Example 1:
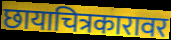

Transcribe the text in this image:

छायाचित्रकारावर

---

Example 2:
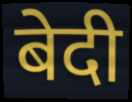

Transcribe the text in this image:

बेदी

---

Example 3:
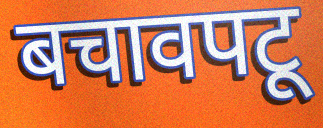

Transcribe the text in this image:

बचावपटू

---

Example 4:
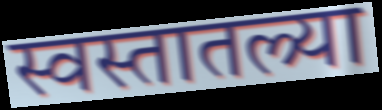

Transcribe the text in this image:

स्वस्तातल्या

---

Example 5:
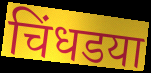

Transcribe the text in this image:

चिंधडया